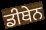
ਡੀਥੇਨ